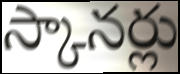
స్కానర్లు